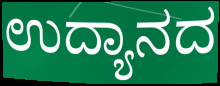
ಉದ್ಯಾನದ